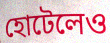
হোটেলেও